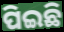
ପିଇଛି